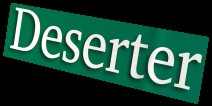
Deserter